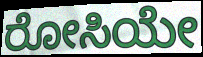
ರೋಸಿಯೇ